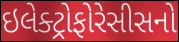
ઇલેક્ટ્રોફોરેસીસનો